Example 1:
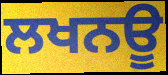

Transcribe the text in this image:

ਲਖਨਊ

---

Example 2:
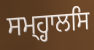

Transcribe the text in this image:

ਸਮ੍ਹ੍ਹਾਲਸਿ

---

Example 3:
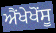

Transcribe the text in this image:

ਐਂਖੇਖੋਂਸੂ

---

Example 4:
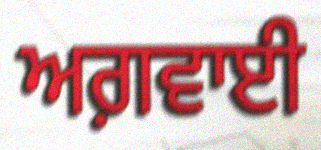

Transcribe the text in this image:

ਅਗ਼ਵਾਈ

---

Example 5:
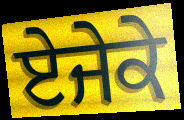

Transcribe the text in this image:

ਏਜੇਕੇ